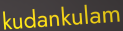
kudankulam